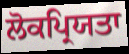
ਲੋਕਪ੍ਰਿਯਤਾ